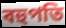
বহুপতি